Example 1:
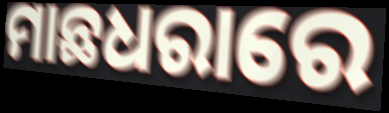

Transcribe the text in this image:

ମାଛଧରାରେ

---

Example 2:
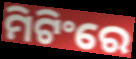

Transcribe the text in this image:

ମିଟିଂରେ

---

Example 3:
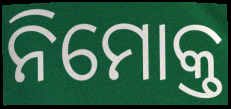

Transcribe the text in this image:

ନିମୋକ୍ତ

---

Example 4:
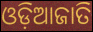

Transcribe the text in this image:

ଓଡ଼ିଆଜାତି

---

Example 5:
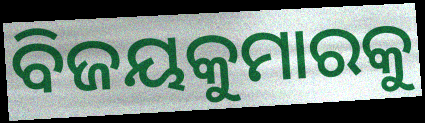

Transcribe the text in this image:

ବିଜୟକୁମାରକୁ